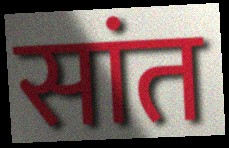
सांत